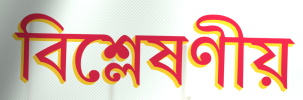
বিশ্লেষণীয়